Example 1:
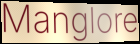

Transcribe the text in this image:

Manglore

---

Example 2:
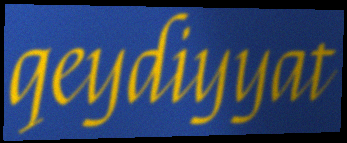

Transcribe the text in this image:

qeydiyyat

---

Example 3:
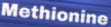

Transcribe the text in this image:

Methionine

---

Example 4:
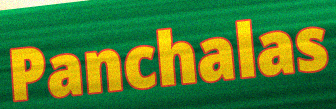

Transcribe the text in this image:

Panchalas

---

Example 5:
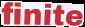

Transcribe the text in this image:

finite